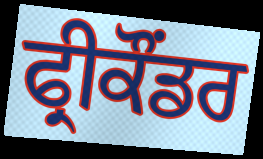
ਫ੍ਰੀਕੌਂਡਰ